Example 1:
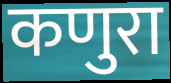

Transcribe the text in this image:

कणुरा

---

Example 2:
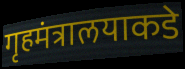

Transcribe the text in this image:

गृहमंत्रालयाकडे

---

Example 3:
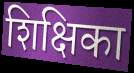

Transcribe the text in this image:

शिक्षिका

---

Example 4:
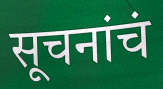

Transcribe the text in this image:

सूचनांचं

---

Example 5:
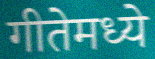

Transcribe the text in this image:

गीतेमध्ये